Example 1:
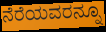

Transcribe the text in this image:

ನೆರೆಯವರನ್ನೂ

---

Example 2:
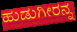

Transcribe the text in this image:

ಹುಡುಗೀರನ್ನ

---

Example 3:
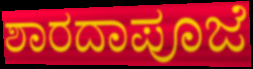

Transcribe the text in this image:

ಶಾರದಾಪೂಜೆ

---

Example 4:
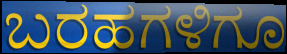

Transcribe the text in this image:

ಬರಹಗಳಿಗೂ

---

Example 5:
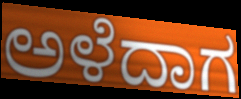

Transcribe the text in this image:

ಅಳೆದಾಗ